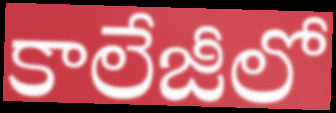
కాలేజీలో